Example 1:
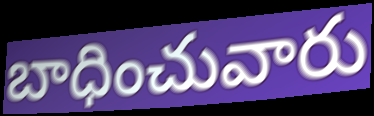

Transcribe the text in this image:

బాధించువారు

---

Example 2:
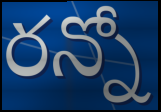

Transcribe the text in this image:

రన్నో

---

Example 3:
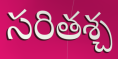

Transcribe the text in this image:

సరితశ్చ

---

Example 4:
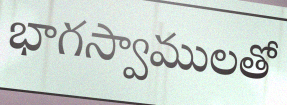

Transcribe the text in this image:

భాగస్వాములతో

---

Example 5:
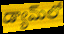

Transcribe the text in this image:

డ్యామ్‌లో